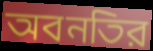
অবনতির